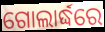
ଗୋଲାର୍ଦ୍ଧରେ